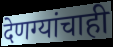
देणग्यांचाही